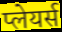
प्‍लेयर्स